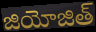
జియోజిత్